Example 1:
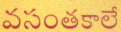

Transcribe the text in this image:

వసంతకాలే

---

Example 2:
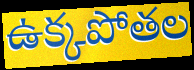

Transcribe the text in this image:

ఉక్కపోతల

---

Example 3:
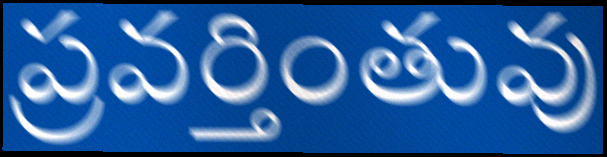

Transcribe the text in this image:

ప్రవర్తింతువు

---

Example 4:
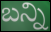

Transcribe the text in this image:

బన్ని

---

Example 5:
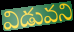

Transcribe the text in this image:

విడువని